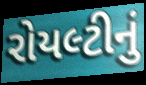
રોયલ્ટીનું